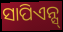
ସାପିଏନ୍ସ୍